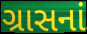
ગ્રાસનાં